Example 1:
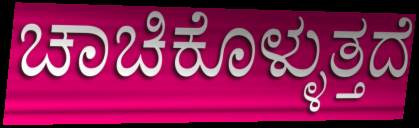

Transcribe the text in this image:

ಚಾಚಿಕೊಳ್ಳುತ್ತದೆ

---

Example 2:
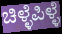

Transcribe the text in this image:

ಚಿಳ್ಳೆಪಿಳ್ಳೆ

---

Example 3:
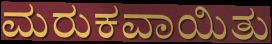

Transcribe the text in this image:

ಮರುಕವಾಯಿತು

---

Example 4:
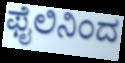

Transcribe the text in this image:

ಫೈಲಿನಿಂದ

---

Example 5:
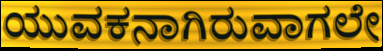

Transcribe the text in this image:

ಯುವಕನಾಗಿರುವಾಗಲೇ